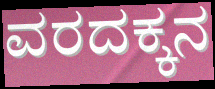
ವರದಕ್ಕನ